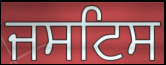
ਜਸਟਿਸ